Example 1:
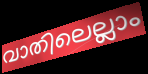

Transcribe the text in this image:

വാതിലെല്ലാം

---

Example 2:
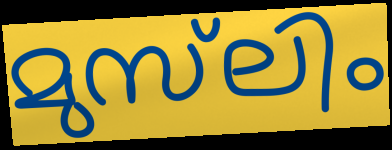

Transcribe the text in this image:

മുസ്‌ലിം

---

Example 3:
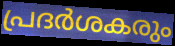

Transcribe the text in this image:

പ്രദർശകരും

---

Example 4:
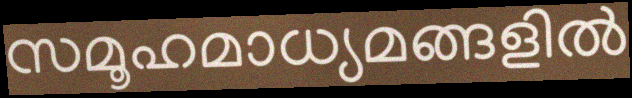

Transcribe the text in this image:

സമൂഹമാധ്യമങ്ങളിൽ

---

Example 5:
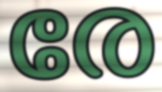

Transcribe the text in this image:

രേ